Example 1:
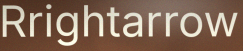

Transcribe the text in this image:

Rrightarrow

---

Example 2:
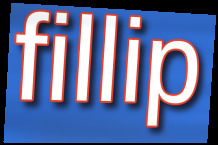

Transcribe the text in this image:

fillip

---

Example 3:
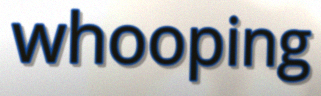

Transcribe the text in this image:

whooping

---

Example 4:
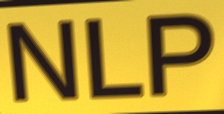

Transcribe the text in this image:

NLP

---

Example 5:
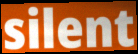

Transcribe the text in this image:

silent